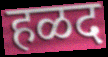
हळद